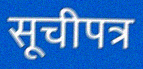
सूचीपत्र